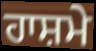
ਹਾਸ਼ਮੇ